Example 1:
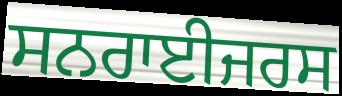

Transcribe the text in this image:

ਸਨਰਾਈਜਰਸ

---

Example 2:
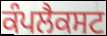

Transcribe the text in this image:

ਕੰਪਲੈਕਸਟ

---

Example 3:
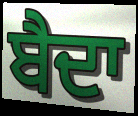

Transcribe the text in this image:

ਬੈਦਾ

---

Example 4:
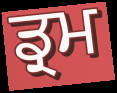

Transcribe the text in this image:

ਡ੍ਰਮ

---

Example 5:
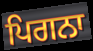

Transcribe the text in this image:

ਪਿਗਨਾ